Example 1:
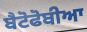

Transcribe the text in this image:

ਬੈਟੋਫੋਬੀਆ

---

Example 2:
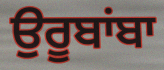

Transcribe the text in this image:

ਉਰੂਬਾਂਬਾ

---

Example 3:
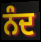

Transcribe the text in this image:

ਨੰਦ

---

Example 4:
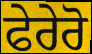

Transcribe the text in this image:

ਫੇਰੇਰੋ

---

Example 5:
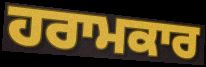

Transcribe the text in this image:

ਹਰਾਮਕਾਰ